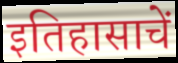
इतिहासाचें